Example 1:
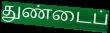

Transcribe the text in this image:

துண்டைப்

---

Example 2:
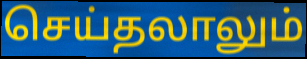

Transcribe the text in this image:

செய்தலாலும்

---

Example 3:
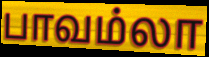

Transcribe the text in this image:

பாவம்லா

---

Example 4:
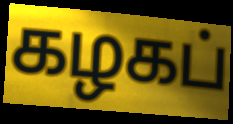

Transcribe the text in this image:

கழகப்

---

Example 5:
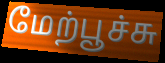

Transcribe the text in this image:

மேற்பூச்சு